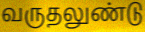
வருதலுண்டு